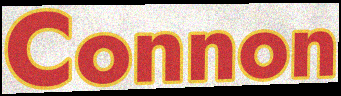
Connon